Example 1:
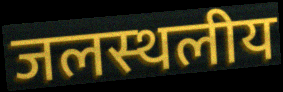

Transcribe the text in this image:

जलस्थलीय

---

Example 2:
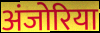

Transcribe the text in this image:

अंजोरिया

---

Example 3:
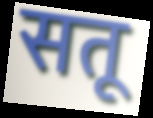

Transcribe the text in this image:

सतू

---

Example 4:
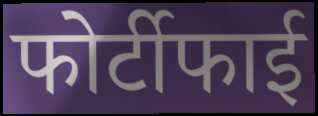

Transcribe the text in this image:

फोर्टीफाई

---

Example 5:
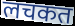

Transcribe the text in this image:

लचकत